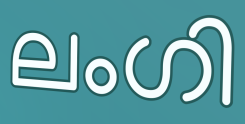
ലംഗി